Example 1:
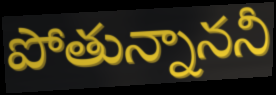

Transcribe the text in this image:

పోతున్నాననీ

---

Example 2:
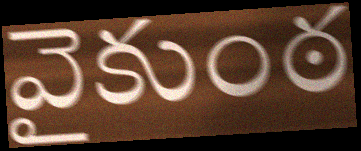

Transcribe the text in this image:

వైకుంఠ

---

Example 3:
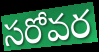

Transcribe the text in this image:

సరోవర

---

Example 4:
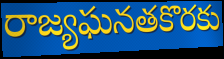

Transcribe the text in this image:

రాజ్యఘనతకొరకు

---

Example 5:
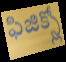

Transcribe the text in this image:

ఫిజిక్స్లో